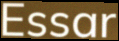
Essar